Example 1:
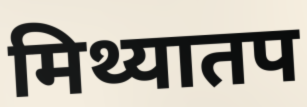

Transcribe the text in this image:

मिथ्यातप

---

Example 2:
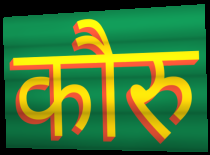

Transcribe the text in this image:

कौरु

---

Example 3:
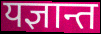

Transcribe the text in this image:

यज्ञान्त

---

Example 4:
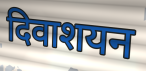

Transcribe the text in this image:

दिवाशयन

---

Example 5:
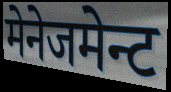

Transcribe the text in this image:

मेनेजमेन्ट